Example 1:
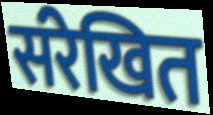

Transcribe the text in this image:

संरेखित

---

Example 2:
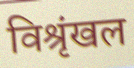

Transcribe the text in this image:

विश्रृंखल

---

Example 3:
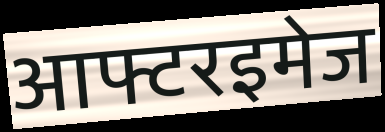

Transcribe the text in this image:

आफ्टरइमेज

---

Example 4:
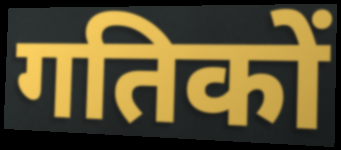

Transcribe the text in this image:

गतिकों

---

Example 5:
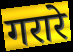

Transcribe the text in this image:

गरारे